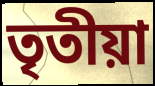
তৃতীয়া